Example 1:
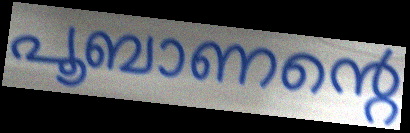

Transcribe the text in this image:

പൂബാണന്റെ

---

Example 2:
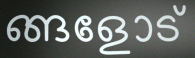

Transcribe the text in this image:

ങ്ങളോട്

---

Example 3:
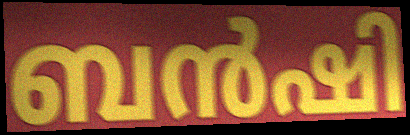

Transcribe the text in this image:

ബൻഷി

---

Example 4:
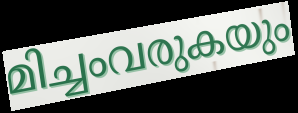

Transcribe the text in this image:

മിച്ചംവരുകയും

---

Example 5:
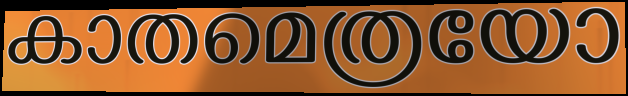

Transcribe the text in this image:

കാതമെത്രയോ